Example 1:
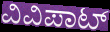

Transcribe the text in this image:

ವಿವಿಪಾಟ್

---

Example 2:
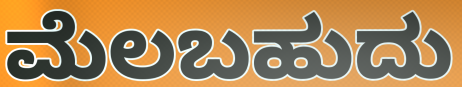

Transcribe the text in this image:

ಮೆಲಬಹುದು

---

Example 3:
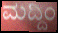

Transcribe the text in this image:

ಮದ್ದಿಂ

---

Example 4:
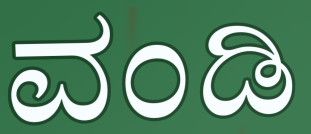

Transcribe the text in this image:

ವಂಡಿ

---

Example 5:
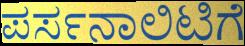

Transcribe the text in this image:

ಪರ್ಸನಾಲಿಟಿಗೆ